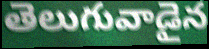
తెలుగువాడైన